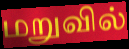
மறுவில்